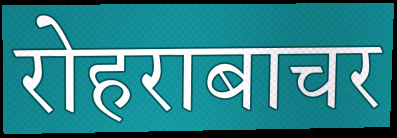
रोहराबाचर